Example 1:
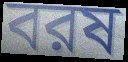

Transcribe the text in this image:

বরষ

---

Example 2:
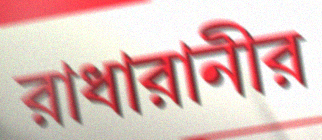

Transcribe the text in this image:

রাধারানীর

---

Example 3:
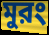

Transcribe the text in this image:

মুরং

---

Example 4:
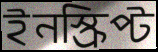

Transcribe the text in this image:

ইনস্ক্রিপ্ট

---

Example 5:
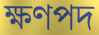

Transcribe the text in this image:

ক্ষণপদ